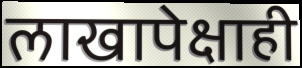
लाखापेक्षाही